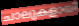
ചാലുകളായി